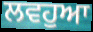
ਲਵਹੁਆ